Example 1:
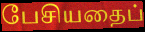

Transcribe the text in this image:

பேசியதைப்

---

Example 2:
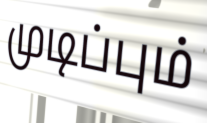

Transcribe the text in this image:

முடிப்பும்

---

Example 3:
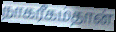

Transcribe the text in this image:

நாகரீகம்தான்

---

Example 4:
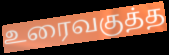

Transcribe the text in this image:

உரைவகுத்த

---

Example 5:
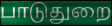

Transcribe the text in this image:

பாடுதுறை